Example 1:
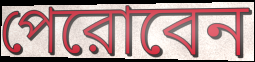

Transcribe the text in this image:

পেরোবেন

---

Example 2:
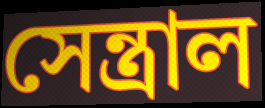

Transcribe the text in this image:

সেন্ত্রাল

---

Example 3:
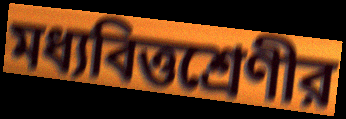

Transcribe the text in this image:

মধ্যবিত্তশ্রেণীর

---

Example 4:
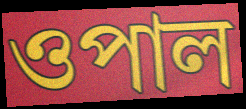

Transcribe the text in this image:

ওপাল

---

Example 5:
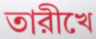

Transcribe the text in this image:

তারীখে